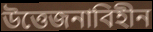
উত্তেজনাবিহীন